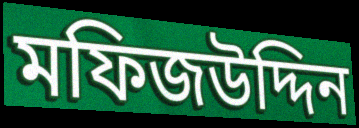
মফিজউদ্দিন